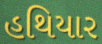
હથિયાર